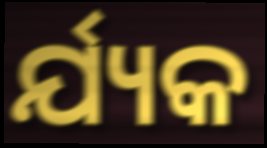
ର୍ଯ୍ୟକ